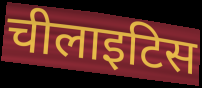
चीलाइटिस